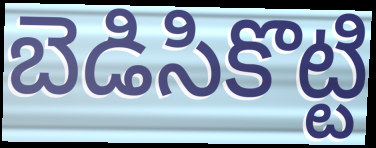
బెడిసికొట్టి